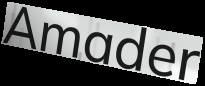
Amader